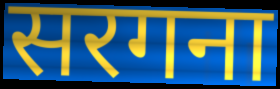
सरगना